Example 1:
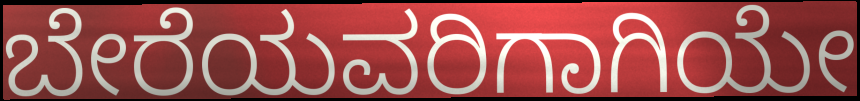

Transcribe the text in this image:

ಬೇರೆಯವರಿಗಾಗಿಯೇ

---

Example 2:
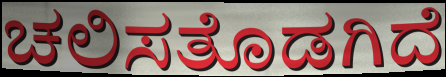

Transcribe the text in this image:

ಚಲಿಸತೊಡಗಿದೆ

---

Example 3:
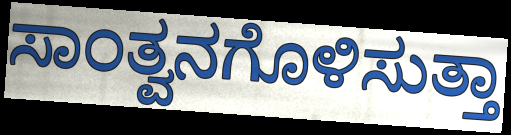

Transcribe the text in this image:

ಸಾಂತ್ವನಗೊಳಿಸುತ್ತಾ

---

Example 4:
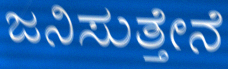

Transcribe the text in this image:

ಜನಿಸುತ್ತೇನೆ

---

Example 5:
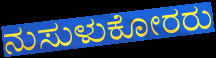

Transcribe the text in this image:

ನುಸುಳುಕೋರರು